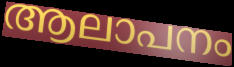
ആലാപനം